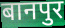
बानपुर